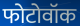
फोटोवॉक